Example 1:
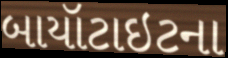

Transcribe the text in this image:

બાયૉટાઇટના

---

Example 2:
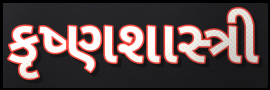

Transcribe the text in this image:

કૃષ્ણશાસ્ત્રી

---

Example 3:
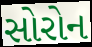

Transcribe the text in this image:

સોરોન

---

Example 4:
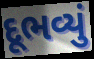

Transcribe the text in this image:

દૂભવ્યું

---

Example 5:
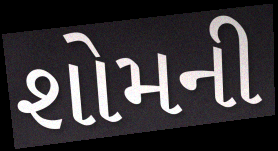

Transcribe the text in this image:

શોમની